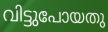
വിട്ടുപോയതു